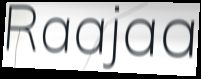
Raajaa